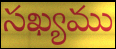
సఖ్యము